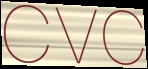
CVC